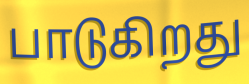
பாடுகிறது